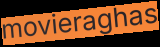
movieraghas